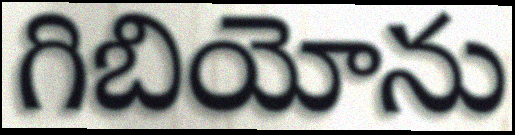
గిబియోను